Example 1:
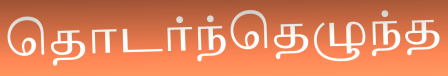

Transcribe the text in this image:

தொடர்ந்தெழுந்த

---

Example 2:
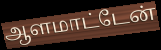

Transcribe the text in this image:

ஆளமாட்டேன்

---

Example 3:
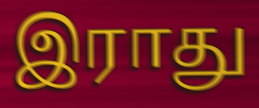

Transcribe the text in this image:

இராது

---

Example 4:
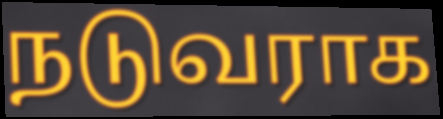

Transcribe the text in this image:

நடுவராக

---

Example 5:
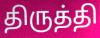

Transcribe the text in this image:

திருத்தி